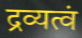
द्रव्यत्वं